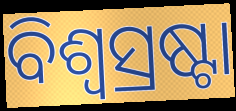
ବିଶ୍ୱସ୍ରଷ୍ଟା